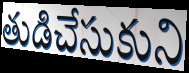
తుడిచేసుకుని